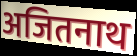
अजितनाथ